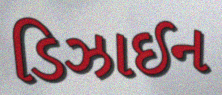
ડિઝાઈન